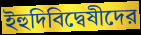
ইহুদিবিদ্বেষীদের